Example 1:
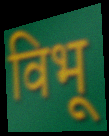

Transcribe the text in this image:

विभू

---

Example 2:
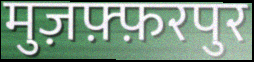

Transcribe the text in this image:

मुज़फ़्फ़रपुर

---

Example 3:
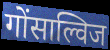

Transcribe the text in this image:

गोंसाल्विज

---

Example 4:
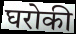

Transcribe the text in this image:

घरोकी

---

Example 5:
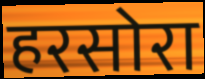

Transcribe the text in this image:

हरसोरा